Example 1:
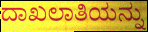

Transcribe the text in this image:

ದಾಖಲಾತಿಯನ್ನು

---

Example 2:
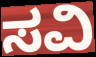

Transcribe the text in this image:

ಸವಿ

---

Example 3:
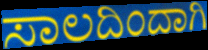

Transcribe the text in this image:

ಸಾಲದಿಂದಾಗಿ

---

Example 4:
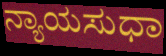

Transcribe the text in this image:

ನ್ಯಾಯಸುಧಾ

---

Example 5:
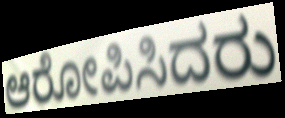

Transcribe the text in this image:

ಆರೋಪಿಸಿದರು